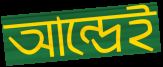
আন্দ্রেই